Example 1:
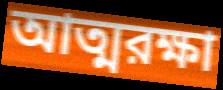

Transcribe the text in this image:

আত্মরক্ষা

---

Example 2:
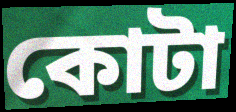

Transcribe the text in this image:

কোটা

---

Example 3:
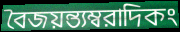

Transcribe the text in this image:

বৈজয়ন্ত্যম্বরাদিকং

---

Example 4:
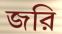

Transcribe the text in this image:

জরি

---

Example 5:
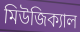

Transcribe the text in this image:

মিউজিক্যাল